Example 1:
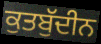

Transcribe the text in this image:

ਕੁਤਬੁੱਦੀਨ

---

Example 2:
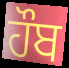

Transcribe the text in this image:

ਹੌਬ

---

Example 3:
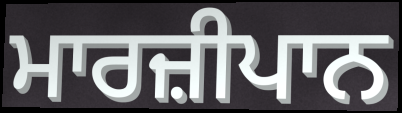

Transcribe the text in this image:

ਮਾਰਜ਼ੀਪਾਨ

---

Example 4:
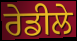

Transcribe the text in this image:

ਰੇਡੀਲੇ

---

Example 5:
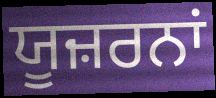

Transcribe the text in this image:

ਯੂਜ਼ਰਨਾਂ